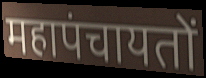
महापंचायतों